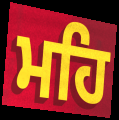
ਮਹਿ